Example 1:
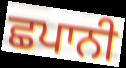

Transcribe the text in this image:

ਛਪਾਨੀ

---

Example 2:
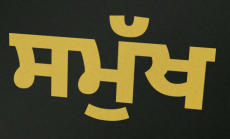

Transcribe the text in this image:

ਸਮੁੱਖ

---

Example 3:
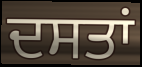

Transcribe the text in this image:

ਦਸਤਾਂ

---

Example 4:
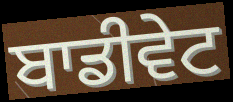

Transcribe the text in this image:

ਬਾਡੀਵੇਟ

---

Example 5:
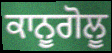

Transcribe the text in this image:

ਕਾਨੂਗੋਲੂ